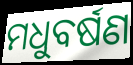
ମଧୁବର୍ଷଣ